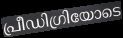
പ്രീഡിഗ്രിയോടെ